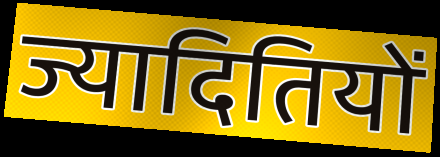
ज्यादितियों